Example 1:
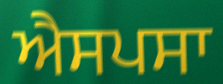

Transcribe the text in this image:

ਐਸਪਸਾ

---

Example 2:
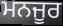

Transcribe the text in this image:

ਮਨਜੂਰ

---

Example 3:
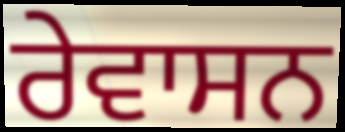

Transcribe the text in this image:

ਰੇਵਾਸਨ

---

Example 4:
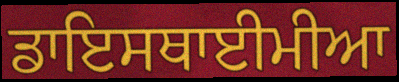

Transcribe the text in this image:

ਡਾਇਸਥਾਈਮੀਆ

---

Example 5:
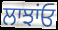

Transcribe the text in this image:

ਲਾਝਾਂਓ